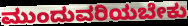
ಮುಂದುವರಿಯಬೇಕು